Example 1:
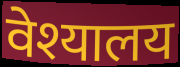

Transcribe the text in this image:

वेश्यालय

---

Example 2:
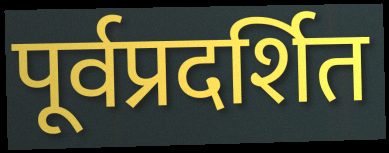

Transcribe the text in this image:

पूर्वप्रदर्शित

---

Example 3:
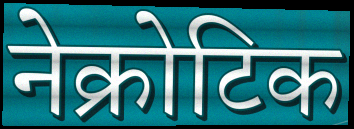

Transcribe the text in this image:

नेक्रोटिक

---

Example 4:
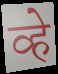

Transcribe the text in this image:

व्हे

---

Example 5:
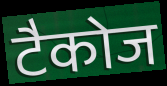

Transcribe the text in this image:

टैकोज